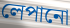
লেপানো